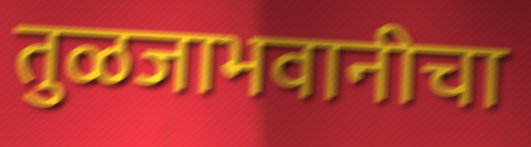
तुळजाभवानीचा